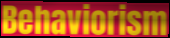
Behaviorism